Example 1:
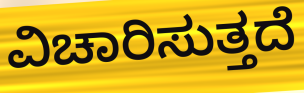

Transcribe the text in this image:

ವಿಚಾರಿಸುತ್ತದೆ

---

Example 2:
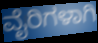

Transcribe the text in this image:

ವೈರಿಗಳಾಗಿ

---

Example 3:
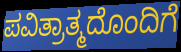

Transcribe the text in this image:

ಪವಿತ್ರಾತ್ಮದೊಂದಿಗೆ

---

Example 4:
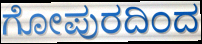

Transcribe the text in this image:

ಗೋಪುರದಿಂದ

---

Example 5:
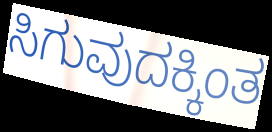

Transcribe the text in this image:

ಸಿಗುವುದಕ್ಕಿಂತ